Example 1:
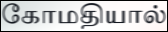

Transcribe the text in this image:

கோமதியால்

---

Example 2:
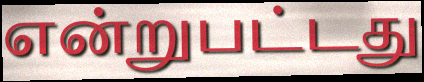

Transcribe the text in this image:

என்றுபட்டது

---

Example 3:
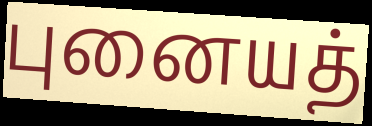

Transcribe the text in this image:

புனையத்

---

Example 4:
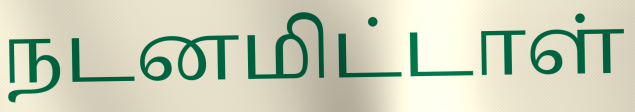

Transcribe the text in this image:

நடனமிட்டாள்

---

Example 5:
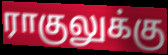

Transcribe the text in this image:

ராகுலுக்கு